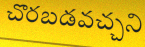
చొరబడవచ్చని